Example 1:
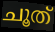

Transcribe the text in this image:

ചൂത്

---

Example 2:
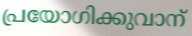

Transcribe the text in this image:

പ്രയോഗിക്കുവാന്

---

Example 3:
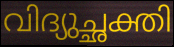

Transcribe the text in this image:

വിദ്യുച്ഛക്തി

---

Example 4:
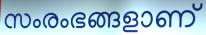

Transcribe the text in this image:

സംരംഭങ്ങളാണ്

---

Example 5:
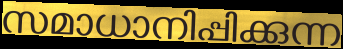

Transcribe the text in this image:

സമാധാനിപ്പിക്കുന്ന